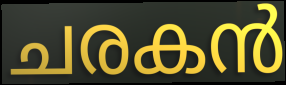
ചരകൻ